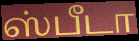
ஸ்பீடா